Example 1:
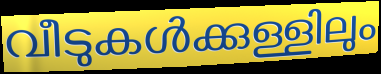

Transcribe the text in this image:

വീടുകൾക്കുള്ളിലും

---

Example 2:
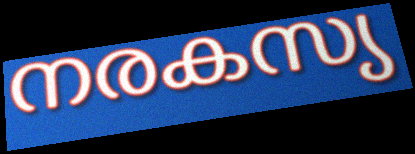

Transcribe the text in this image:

നരകസ്യ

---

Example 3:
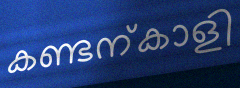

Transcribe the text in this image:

കണ്ടന്കാളി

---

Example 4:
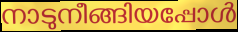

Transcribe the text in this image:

നാടുനീങ്ങിയപ്പോൾ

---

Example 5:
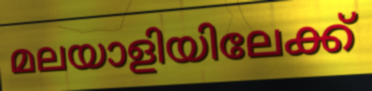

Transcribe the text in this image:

മലയാളിയിലേക്ക്